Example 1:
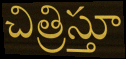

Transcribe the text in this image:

చిత్రిస్తూ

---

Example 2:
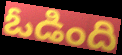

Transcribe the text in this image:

ఓడింది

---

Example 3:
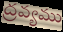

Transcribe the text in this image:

ద్రవ్యము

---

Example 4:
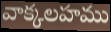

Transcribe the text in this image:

వాక్కలహము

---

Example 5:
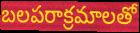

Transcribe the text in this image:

బలపరాక్రమాలతో